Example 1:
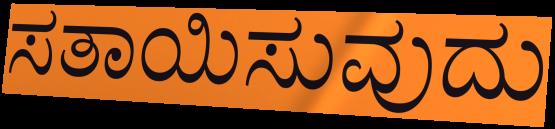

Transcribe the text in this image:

ಸತಾಯಿಸುವುದು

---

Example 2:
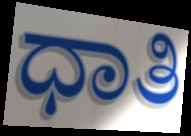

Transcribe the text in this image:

ಧಾತಿ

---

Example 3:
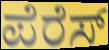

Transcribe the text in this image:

ಪೆರೆಸ್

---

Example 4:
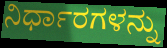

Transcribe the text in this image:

ನಿರ್ಧಾರಗಳನ್ನು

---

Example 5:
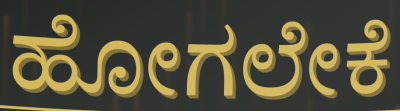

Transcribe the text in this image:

ಹೋಗಲೇಕೆ